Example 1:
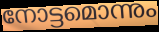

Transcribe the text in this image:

നോട്ടമൊന്നും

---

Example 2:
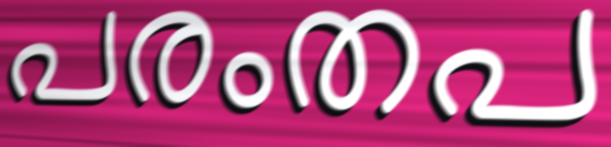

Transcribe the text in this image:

പരംതപ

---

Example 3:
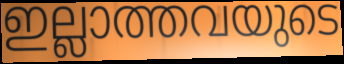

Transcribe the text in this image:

ഇല്ലാത്തവയുടെ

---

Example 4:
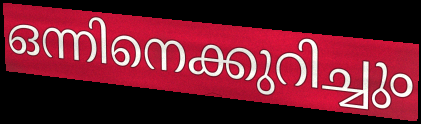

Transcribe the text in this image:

ഒന്നിനെക്കുറിച്ചും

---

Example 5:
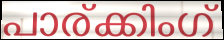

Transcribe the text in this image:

പാര്ക്കിംഗ്